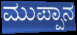
ಮುಪ್ಪಾನ